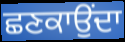
ਛਣਕਾਉਂਦਾ